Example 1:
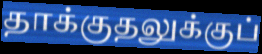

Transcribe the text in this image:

தாக்குதலுக்குப்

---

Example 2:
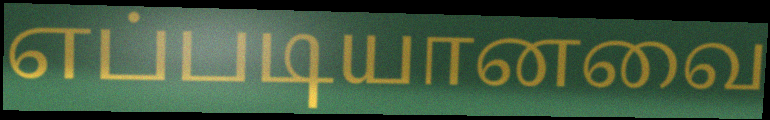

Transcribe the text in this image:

எப்படியானவை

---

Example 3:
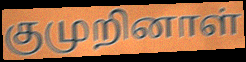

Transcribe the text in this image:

குமுறினாள்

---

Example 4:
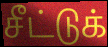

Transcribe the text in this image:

சீட்டுக்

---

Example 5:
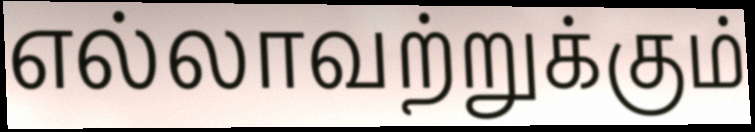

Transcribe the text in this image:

எல்லாவற்றுக்கும்